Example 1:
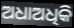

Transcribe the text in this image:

ଅଧାଅଧିକି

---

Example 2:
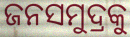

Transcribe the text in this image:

ଜନସମୁଦ୍ରକୁ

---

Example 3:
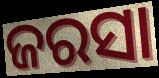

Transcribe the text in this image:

ଜରସା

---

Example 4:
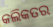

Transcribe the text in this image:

କଲିକତର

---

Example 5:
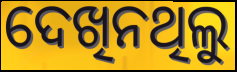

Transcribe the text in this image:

ଦେଖିନଥିଲୁ